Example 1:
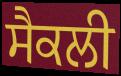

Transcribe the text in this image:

ਸੈਕਲੀ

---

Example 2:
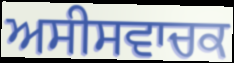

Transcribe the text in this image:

ਅਸੀਸਵਾਚਕ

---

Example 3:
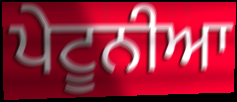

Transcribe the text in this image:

ਪੇਟੂਨੀਆ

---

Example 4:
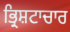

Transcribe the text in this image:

ਭ੍ਰਿਸ਼ਟਾਚਾਰ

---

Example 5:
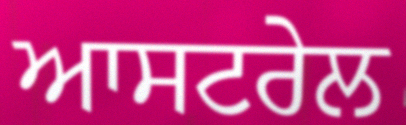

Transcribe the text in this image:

ਆਸਟਰੇਲ